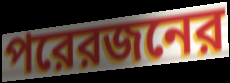
পরেরজনের